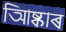
আিষ্কাৰ